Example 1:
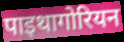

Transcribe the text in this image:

पाइथागोरियन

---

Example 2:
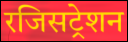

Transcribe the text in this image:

रजिसट्रेशन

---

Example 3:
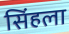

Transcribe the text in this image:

सिंहला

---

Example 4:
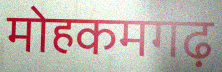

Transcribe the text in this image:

मोहकमगढ़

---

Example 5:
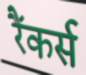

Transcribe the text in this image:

रैंकर्स